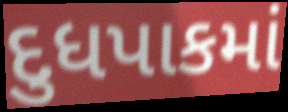
દુધપાકમાં